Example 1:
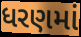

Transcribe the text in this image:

ધરણમાં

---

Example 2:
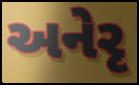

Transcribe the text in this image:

અનેરૃ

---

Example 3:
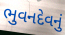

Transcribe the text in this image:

ભુવનદેવનું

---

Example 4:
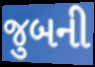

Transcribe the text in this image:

જુબની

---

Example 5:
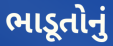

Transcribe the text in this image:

ભાડૂતોનું